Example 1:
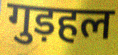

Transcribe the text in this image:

गुड़हल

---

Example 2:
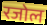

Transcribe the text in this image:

रजोल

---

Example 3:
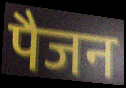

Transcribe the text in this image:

पैजन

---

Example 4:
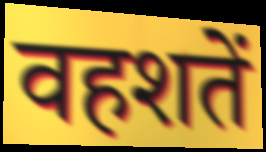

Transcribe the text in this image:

वहशतें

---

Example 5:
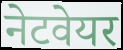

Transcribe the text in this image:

नेटवेयर